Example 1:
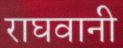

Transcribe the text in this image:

राघवानी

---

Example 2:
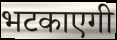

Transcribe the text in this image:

भटकाएगी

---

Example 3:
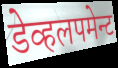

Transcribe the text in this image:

डेव्हलपमेन्ट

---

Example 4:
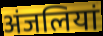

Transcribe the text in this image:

अंजलियां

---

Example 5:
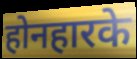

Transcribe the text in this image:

होनहारके